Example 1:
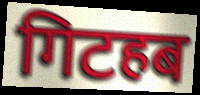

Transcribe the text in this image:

गिटहब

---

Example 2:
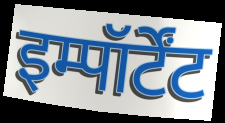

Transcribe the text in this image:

इम्पॉर्टेंट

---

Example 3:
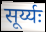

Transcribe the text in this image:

सूर्य्यः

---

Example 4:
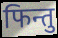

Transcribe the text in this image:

फिन्तु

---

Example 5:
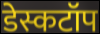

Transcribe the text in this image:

डेस्‍कटॉप